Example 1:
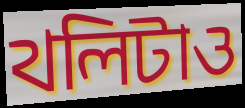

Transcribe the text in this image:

থলিটাও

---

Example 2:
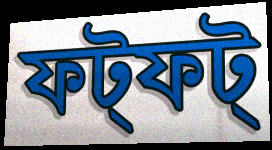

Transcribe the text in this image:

ফট্ফট্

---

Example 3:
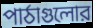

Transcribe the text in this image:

পাঠাগুলোর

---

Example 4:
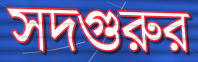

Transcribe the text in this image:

সদগুরুর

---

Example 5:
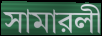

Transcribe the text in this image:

সামারলী